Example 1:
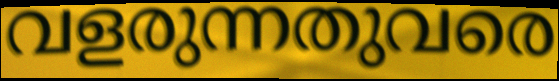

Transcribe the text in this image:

വളരുന്നതുവരെ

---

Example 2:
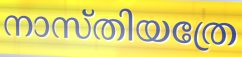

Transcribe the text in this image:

നാസ്തിയത്രേ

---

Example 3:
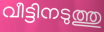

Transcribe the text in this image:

വീട്ടിനടുത്തു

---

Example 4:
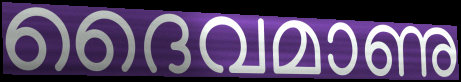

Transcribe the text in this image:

ദൈവമാണു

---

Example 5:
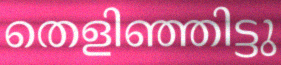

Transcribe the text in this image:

തെളിഞ്ഞിട്ടു